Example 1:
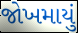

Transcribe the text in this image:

જોખમાયું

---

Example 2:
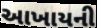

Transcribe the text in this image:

આખાયની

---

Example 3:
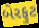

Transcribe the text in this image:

બેરફુટ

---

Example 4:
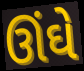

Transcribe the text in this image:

ઊંઘે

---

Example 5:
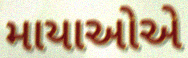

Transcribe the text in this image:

માયાઓએ